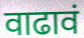
वाढावं